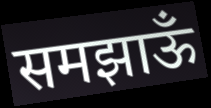
समझाऊँ